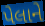
પેલાને